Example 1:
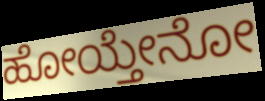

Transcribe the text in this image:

ಹೋಯ್ತೇನೋ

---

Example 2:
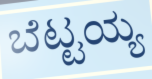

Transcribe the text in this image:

ಬೆಟ್ಟಯ್ಯ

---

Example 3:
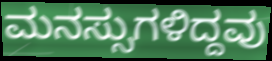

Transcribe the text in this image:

ಮನಸ್ಸುಗಳಿದ್ದವು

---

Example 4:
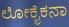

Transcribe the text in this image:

ಲೋಕೈಕನಾ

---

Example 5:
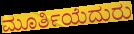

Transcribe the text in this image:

ಮೂರ್ತಿಯೆದುರು